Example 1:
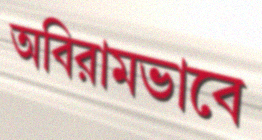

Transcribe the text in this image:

অবিরামভাবে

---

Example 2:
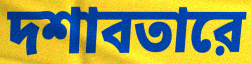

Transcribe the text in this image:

দশাবতারে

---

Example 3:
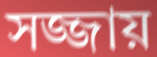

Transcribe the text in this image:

সজ্জায়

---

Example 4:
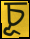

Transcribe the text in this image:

চূ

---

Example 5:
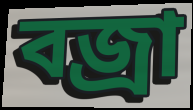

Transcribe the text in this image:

বজ্রা